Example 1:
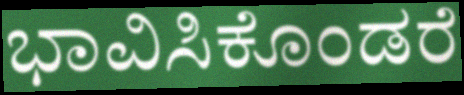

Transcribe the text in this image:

ಭಾವಿಸಿಕೊಂಡರೆ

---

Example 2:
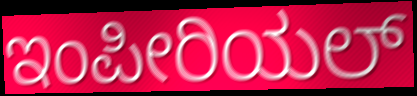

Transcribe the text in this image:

ಇಂಪೀರಿಯಲ್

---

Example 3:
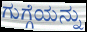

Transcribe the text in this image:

ಗುಗ್ಗೆಯನ್ನು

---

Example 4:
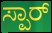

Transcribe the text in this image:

ಸ್ಪಾರ್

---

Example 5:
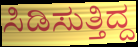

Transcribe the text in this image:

ಸಿಡಿಸುತ್ತಿದ್ದ